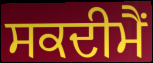
ਸਕਦੀਮੈਂ